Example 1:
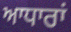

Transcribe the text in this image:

ਆਧਾਰਾਂ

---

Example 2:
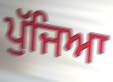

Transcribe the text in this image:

ਪੁੱਜਿਆ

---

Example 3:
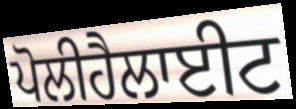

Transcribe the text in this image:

ਪੋਲੀਹੈਲਾਈਟ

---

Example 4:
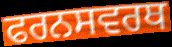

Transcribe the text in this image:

ਫਰਨਸਵਰਥ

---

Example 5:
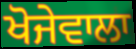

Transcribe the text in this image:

ਖੋਜੇਵਾਲਾ